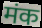
मंक